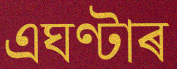
এঘণ্টাৰ